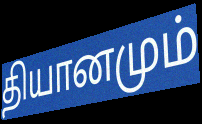
தியானமும்